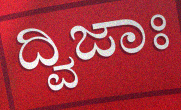
ದ್ವಿಜಾಃ